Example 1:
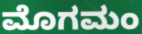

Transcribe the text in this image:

ಮೊಗಮಂ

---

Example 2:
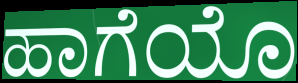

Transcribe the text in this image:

ಹಾಗೆಯೊ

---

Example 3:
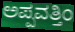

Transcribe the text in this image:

ಅಪ್ಪವತ್ತಿಂ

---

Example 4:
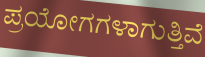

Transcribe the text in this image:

ಪ್ರಯೋಗಗಳಾಗುತ್ತಿವೆ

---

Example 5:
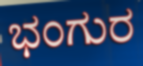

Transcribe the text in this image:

ಭಂಗುರ